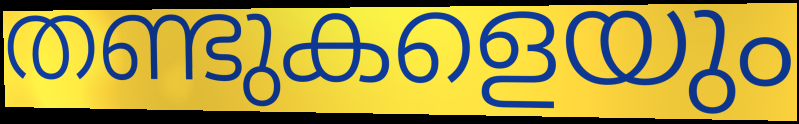
തണ്ടുകളെയും